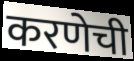
करणेची